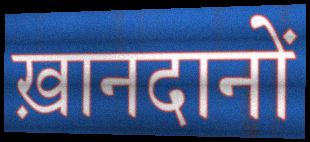
ख़ानदानों